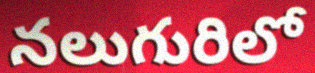
నలుగురిలో